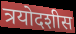
त्रयोदशीस